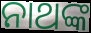
ନାଥଙ୍କ